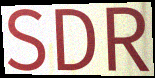
SDR